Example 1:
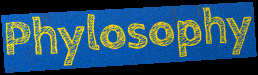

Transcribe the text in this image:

Phylosophy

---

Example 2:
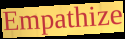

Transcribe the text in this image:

Empathize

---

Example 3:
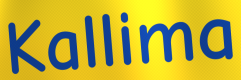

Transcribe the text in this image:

Kallima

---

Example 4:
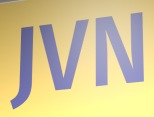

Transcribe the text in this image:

JVN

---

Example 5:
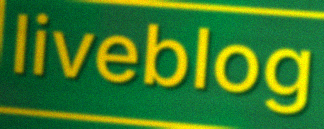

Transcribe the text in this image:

liveblog